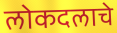
लोकदलाचे